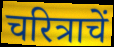
चरित्राचें